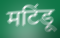
मटिंडू